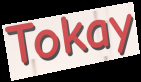
Tokay